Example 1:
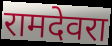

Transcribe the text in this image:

रामदेवरा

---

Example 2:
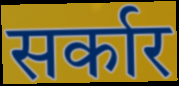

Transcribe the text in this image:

सर्कार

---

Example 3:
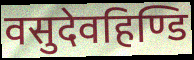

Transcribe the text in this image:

वसुदेवहिण्डि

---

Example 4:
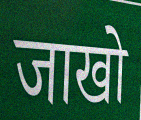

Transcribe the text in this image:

जाखो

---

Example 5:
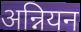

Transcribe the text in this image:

अन्नियन